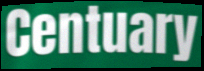
Centuary